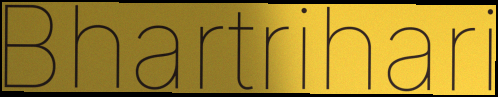
Bhartrihari